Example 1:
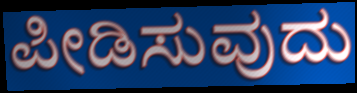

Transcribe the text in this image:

ಪೀಡಿಸುವುದು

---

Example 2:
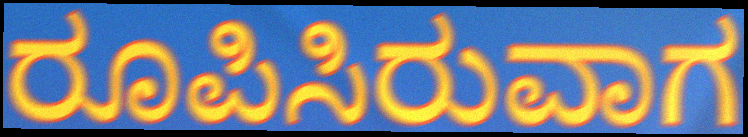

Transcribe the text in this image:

ರೂಪಿಸಿರುವಾಗ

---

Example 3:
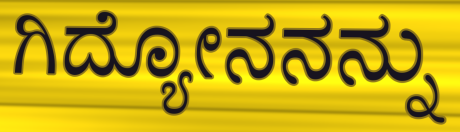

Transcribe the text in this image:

ಗಿದ್ಯೋನನನ್ನು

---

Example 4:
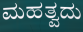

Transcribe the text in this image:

ಮಹತ್ವದು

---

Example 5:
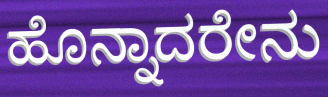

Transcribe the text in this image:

ಹೊನ್ನಾದರೇನು